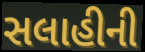
સલાહીની